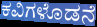
ಕವಿಗಳೊಡನೆ